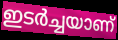
ഇടർച്ചയാണ്